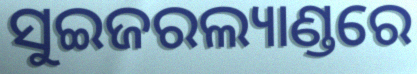
ସୁଇଜରଲ୍ୟାଣ୍ଡରେ